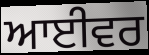
ਆਈਵਰ